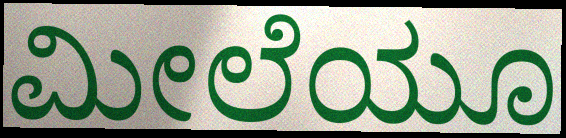
ಮೀಲೆಯೂ